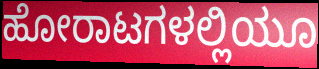
ಹೋರಾಟಗಳಲ್ಲಿಯೂ